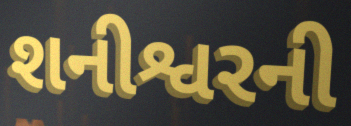
શનીશ્વરની